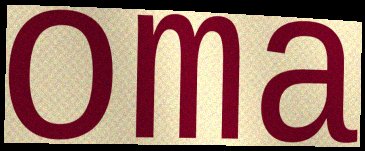
oma